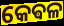
କେଵଳ